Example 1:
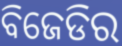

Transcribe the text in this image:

ବିଜେଡିର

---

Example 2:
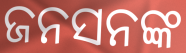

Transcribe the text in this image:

ଜନସନଙ୍କ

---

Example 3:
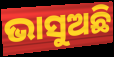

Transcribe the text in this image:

ଭାସୁଅଛି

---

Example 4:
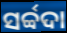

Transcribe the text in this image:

ସର୍ବ୍ବଦା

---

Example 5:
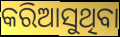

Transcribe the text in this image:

କରିଆସୁଥିବା